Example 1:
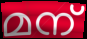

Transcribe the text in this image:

മന്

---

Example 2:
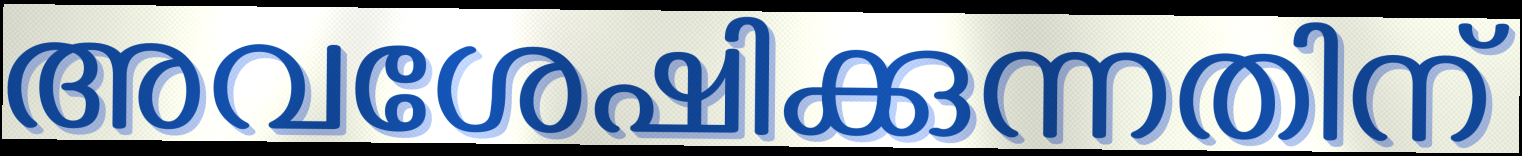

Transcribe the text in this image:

അവശേഷിക്കുന്നതിന്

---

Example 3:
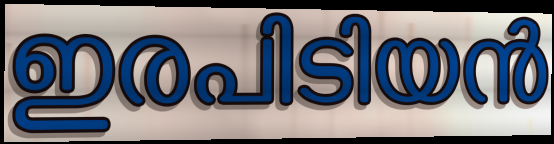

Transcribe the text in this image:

ഇരപിടിയൻ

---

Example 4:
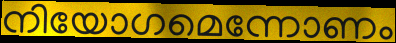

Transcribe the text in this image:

നിയോഗമെന്നോണം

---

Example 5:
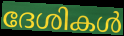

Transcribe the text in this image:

ദേശികൾ